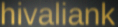
hivaliank